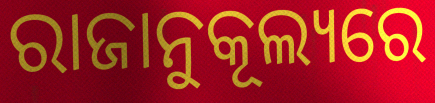
ରାଜାନୁକୂଲ୍ୟରେ